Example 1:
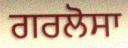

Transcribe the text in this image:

ਗਰਲੋਸਾ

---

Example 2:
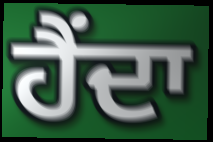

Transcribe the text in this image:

ਹੈਂਦਾ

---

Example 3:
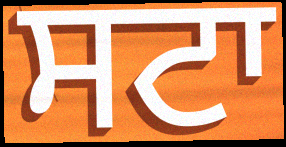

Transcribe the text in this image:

ਸਟਾ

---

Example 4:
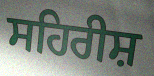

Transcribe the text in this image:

ਸਹਿਰੀਸ਼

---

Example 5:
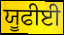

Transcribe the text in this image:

ਯੂਫੀਈ